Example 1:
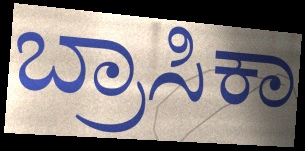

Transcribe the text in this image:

ಬ್ರಾಸಿಕಾ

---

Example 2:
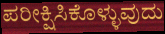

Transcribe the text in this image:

ಪರೀಕ್ಷಿಸಿಕೊಳ್ಳುವುದು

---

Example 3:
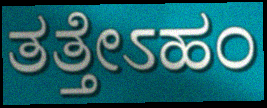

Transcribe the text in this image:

ತತ್ತೇಽಹಂ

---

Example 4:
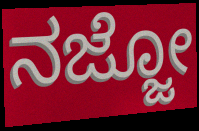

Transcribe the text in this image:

ನಜ್ಜೋ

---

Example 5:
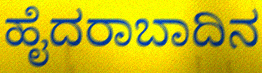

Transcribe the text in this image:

ಹೈದರಾಬಾದಿನ